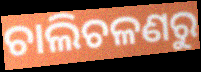
ଚାଲିଚଳଣରୁ